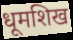
धूमशिख